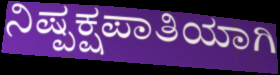
ನಿಷ್ಪಕ್ಷಪಾತಿಯಾಗಿ